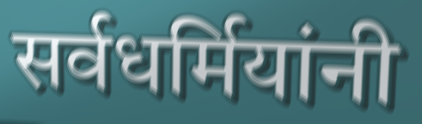
सर्वधर्मियांनी